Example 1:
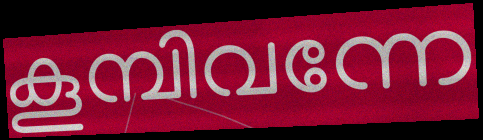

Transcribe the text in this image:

കൂമ്പിവന്നേ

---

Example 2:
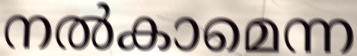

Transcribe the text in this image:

നൽകാമെന്ന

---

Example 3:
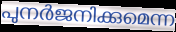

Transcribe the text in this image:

പുനർജനിക്കുമെന്ന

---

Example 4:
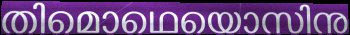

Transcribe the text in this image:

തിമൊഥെയൊസിനു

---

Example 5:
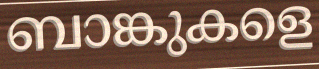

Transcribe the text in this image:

ബാങ്കുകളെ